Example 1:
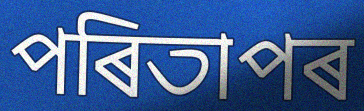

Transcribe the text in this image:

পৰিতাপৰ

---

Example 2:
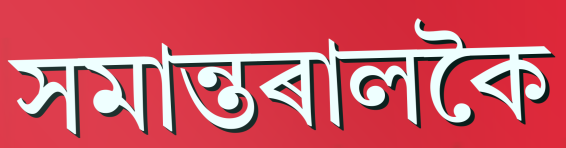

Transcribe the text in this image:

সমান্তৰালকৈ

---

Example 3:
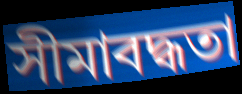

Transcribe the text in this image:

সীমাবদ্ধতা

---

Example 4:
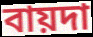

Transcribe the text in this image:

বায়দা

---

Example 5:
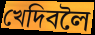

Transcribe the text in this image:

খেদিবলৈ